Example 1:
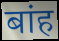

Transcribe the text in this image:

बांह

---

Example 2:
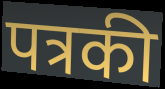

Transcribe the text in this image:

पत्रकी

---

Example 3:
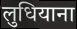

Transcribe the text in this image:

लुधियाना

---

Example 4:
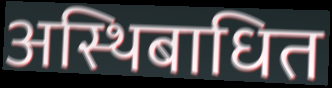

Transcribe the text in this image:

अस्थिबाधित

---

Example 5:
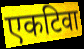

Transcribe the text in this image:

एकटिवा